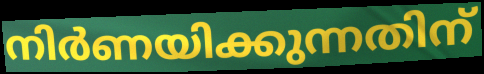
നിർണയിക്കുന്നതിന്